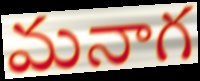
మనాగ